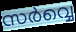
സർവ്വെ